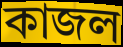
কাজল